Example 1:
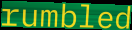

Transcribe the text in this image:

rumbled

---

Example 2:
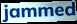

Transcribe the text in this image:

jammed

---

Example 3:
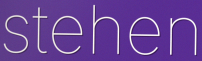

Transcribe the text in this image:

stehen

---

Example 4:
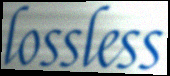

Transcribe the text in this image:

lossless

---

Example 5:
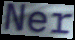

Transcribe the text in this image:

Ner